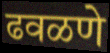
ढवळणे